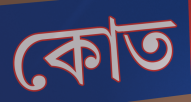
কোত